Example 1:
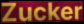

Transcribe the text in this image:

Zucker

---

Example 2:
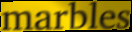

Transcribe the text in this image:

marbles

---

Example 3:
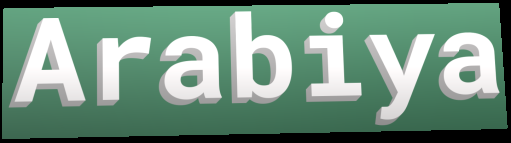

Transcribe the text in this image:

Arabiya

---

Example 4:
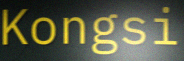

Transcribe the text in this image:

Kongsi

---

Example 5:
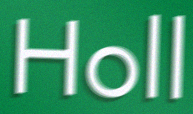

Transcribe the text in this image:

Holl